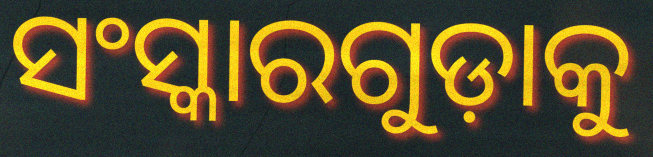
ସଂସ୍କାରଗୁଡ଼ାକୁ